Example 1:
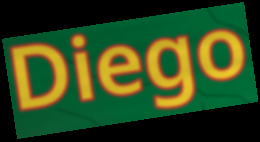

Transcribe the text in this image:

Diego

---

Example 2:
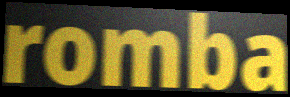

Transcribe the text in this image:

romba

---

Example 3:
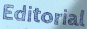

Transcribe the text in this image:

Editorial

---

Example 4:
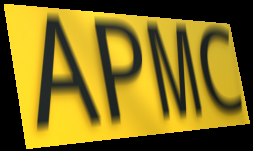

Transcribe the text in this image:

APMC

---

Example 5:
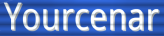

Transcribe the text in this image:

Yourcenar